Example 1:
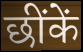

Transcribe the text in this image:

छींकें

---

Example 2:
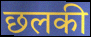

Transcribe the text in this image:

छलकी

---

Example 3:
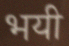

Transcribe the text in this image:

भयी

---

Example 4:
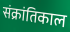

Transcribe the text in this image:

संक्रांतिकाल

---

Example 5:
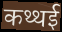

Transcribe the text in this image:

कथ्थई